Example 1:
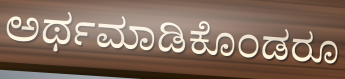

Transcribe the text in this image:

ಅರ್ಥಮಾಡಿಕೊಂಡರೂ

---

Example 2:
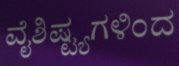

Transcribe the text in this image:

ವೈಶಿಷ್ಟ್ಯಗಳಿಂದ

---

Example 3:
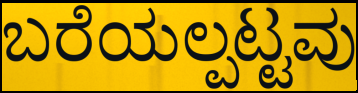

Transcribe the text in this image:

ಬರೆಯಲ್ಪಟ್ಟವು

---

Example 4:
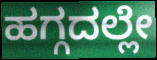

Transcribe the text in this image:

ಹಗ್ಗದಲ್ಲೇ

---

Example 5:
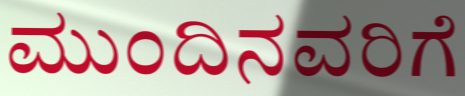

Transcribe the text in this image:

ಮುಂದಿನವರಿಗೆ